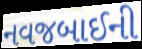
નવજબાઈની